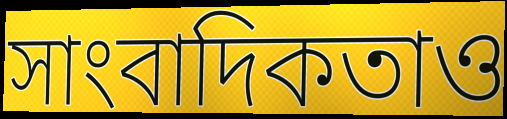
সাংবাদিকতাও